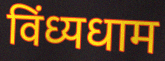
विंध्यधाम